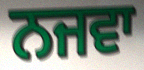
ਨਜਵਾ